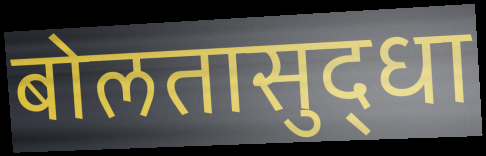
बोलतासुद्धा